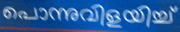
പൊന്നുവിളയിച്ച്